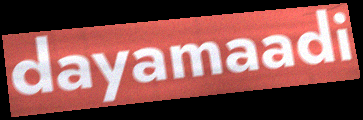
dayamaadi